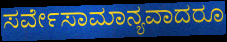
ಸರ್ವೇಸಾಮಾನ್ಯವಾದರೂ